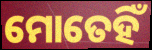
ମୋତେହିଁ